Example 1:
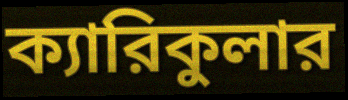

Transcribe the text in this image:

ক্যারিকুলার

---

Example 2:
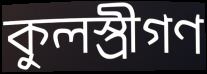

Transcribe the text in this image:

কুলস্ত্রীগণ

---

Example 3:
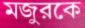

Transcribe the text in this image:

মজুরকে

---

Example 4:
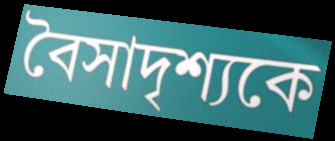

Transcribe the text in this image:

বৈসাদৃশ্যকে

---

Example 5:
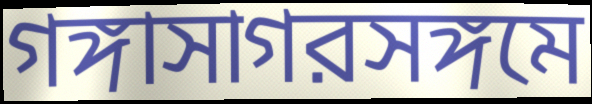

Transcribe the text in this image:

গঙ্গাসাগরসঙ্গমে